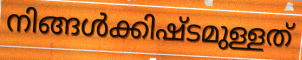
നിങ്ങൾക്കിഷ്ടമുള്ളത്